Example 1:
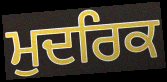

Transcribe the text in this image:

ਮੁਦਰਿਕ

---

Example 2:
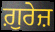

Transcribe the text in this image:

ਗ਼ੁਰੇਜ਼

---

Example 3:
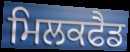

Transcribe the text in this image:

ਮਿਲਕਫੈਡ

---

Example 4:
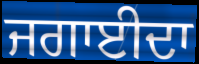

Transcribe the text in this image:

ਜਗਾਈਦਾ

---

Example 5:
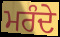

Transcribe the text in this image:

ਮਰੰਦੇ